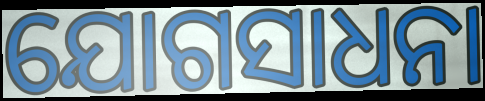
ଯୋଗସାଧନା